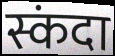
स्कंदा